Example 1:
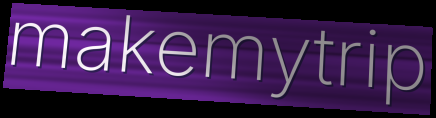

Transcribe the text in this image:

makemytrip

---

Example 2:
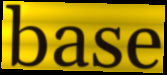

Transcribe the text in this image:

base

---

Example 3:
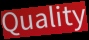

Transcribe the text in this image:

Quality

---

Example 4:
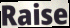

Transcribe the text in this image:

Raise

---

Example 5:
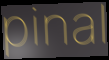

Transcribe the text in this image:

pinal